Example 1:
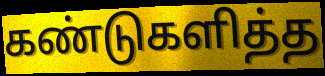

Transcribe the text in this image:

கண்டுகளித்த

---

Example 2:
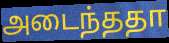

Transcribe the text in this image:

அடைந்ததா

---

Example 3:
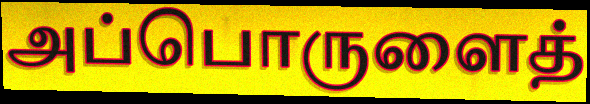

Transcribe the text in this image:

அப்பொருளைத்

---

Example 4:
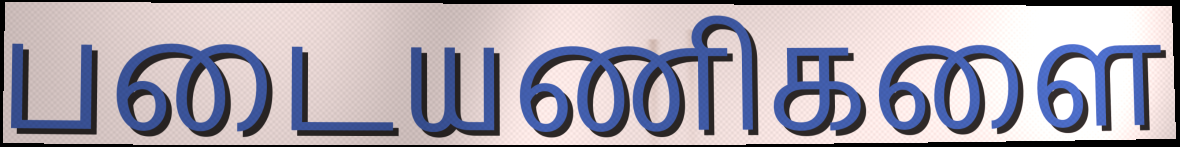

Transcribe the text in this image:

படையணிகளை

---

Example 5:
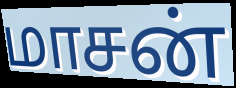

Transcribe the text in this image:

மாசன்